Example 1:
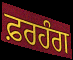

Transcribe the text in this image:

ਫ਼ਰਹੰਗ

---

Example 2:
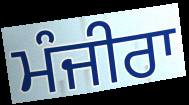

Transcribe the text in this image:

ਮੰਜੀਰਾ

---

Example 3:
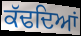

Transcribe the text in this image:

ਕੱਢਦਿਆਂ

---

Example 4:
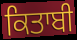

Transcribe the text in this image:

ਕਿਤਾਬੀ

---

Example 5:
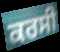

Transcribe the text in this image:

ਕਰਸੀ